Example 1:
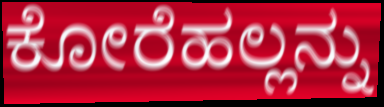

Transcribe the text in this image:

ಕೋರೆಹಲ್ಲನ್ನು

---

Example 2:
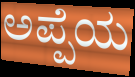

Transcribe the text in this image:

ಅಪ್ಪೆಯ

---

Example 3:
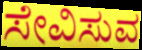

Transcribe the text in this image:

ಸೇವಿಸುವ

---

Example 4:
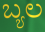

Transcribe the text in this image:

ಬ್ಯಲ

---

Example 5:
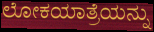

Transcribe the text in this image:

ಲೋಕಯಾತ್ರೆಯನ್ನು